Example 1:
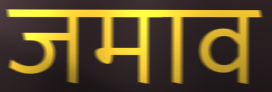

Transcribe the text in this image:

जमाव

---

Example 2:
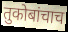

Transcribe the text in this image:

तुकोबांचाच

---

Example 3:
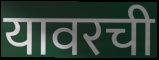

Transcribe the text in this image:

यावरची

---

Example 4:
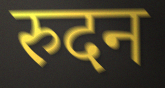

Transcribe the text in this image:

रुदन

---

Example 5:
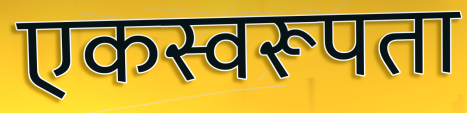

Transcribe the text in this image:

एकस्वरूपता